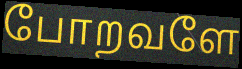
போறவளே